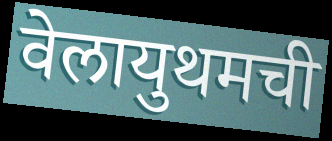
वेलायुथमची